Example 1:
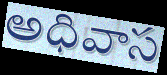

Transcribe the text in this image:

అధివాస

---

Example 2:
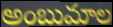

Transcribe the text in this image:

అంబుమాల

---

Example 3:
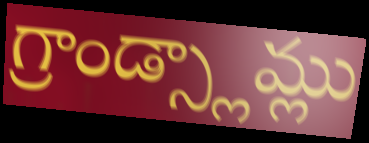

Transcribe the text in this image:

గ్రాండ్స్లామ్లు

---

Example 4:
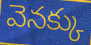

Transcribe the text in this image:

వెనక్కు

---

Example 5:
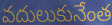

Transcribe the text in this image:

వదులుకునేంత